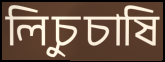
লিচুচাষি